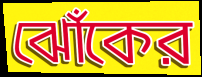
ঝোঁকের